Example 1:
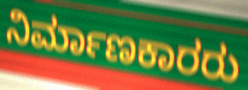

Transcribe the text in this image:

ನಿರ್ಮಾಣಕಾರರು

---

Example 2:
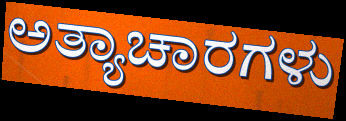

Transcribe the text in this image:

ಅತ್ಯಾಚಾರಗಳು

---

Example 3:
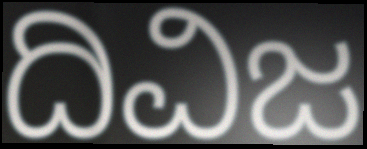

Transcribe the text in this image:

ದಿವಿಜ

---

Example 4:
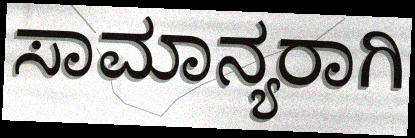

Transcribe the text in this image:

ಸಾಮಾನ್ಯರಾಗಿ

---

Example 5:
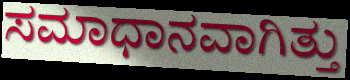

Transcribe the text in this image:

ಸಮಾಧಾನವಾಗಿತ್ತು